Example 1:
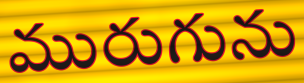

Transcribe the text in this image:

మురుగును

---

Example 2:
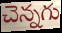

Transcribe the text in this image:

చెన్నగు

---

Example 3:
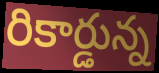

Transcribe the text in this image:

రికార్డున్న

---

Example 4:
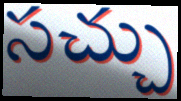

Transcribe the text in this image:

సచ్చు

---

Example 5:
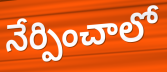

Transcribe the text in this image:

నేర్పించాలో